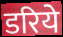
डरिये